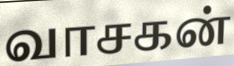
வாசகன்